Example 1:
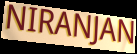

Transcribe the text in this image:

NIRANJAN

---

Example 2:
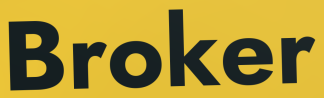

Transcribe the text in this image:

Broker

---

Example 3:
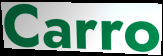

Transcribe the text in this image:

Carro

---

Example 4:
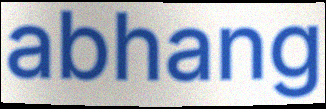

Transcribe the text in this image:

abhang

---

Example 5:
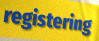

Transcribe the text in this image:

registering